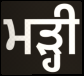
ਮੜ੍ਹੀ